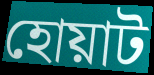
হোয়াট